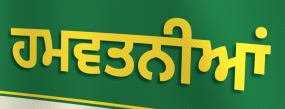
ਹਮਵਤਨੀਆਂ